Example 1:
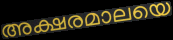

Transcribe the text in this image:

അക്ഷരമാലയെ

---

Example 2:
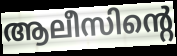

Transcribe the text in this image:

ആലീസിന്റെ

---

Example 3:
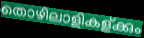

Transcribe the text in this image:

തൊഴിലാളികള്ക്കും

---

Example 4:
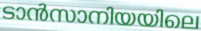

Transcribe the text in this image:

ടാൻസാനിയയിലെ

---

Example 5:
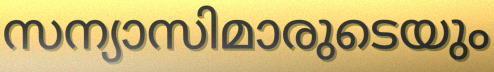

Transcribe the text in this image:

സന്യാസിമാരുടെയും